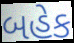
બહેક